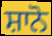
ਸ਼ਾਨੋ